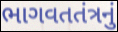
ભાગવતતંત્રનું